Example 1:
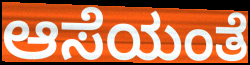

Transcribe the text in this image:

ಆಸೆಯಂತೆ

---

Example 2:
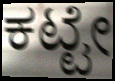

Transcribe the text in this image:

ಕಟ್ಟೇ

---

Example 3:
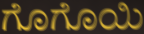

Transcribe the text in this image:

ಗೊಗೊಯಿ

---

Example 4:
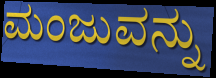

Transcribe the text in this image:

ಮಂಜುವನ್ನು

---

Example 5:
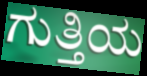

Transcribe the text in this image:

ಗುತ್ತಿಯ